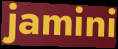
jamini